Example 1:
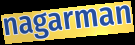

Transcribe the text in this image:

nagarman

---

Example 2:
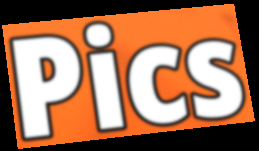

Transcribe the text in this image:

Pics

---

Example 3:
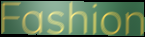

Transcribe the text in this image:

Fashion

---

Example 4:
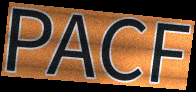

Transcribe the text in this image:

PACF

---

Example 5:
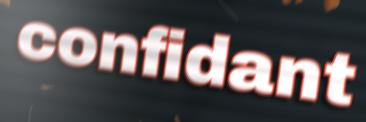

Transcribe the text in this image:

confidant